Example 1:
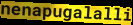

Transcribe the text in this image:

nenapugalalli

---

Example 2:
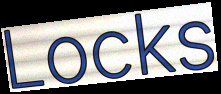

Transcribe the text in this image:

Locks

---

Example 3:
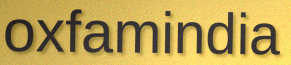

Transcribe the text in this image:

oxfamindia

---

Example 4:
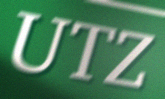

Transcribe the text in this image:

UTZ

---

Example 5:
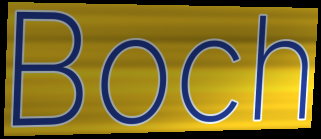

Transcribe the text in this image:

Boch